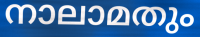
നാലാമതും